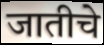
जातीचे